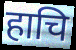
हाचि